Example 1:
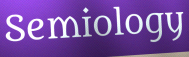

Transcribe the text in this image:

Semiology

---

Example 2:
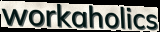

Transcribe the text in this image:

workaholics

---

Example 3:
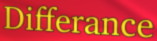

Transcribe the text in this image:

Differance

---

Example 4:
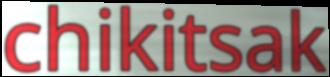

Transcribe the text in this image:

chikitsak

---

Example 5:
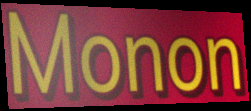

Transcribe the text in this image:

Monon